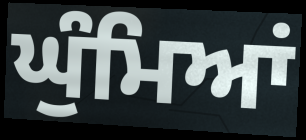
ਘੁੰਮਿਆਂ